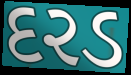
દરડ